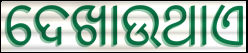
ଦେଖାଉଥାଏ